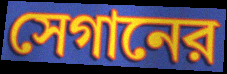
সেগানের